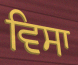
ਵਿਸਾ